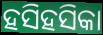
ହସିହସିକା